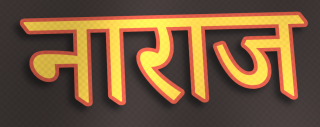
नाराज